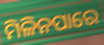
ମିଳିନପାରେ